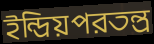
ইন্দ্রিয়পরতন্ত্র